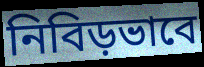
নিবিড়ভাবে